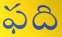
ఫది